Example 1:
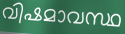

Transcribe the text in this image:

വിഷമാവസ്ഥ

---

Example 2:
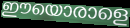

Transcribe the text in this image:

ഈയൊരാളെ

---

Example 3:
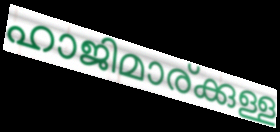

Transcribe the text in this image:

ഹാജിമാര്ക്കുള്ള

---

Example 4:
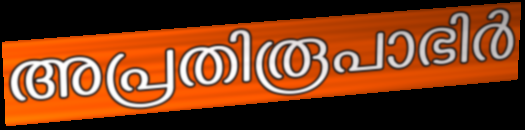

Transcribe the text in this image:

അപ്രതിരൂപാഭിർ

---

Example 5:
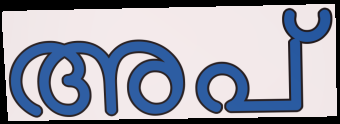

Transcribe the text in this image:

അപ്